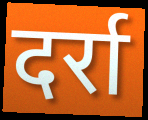
दर्रा